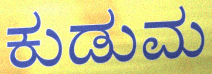
ಕುಡುಮ